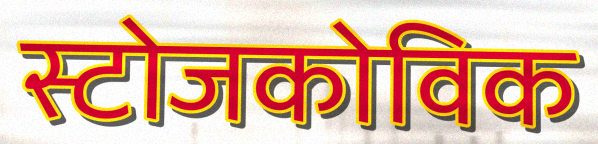
स्टोजकोविक